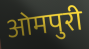
ओमपुरी